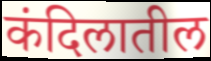
कंदिलातील